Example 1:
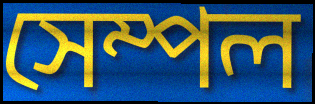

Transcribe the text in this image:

সেম্পল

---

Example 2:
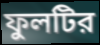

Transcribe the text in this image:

ফুলটির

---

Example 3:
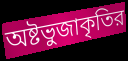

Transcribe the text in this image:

অষ্টভুজাকৃতির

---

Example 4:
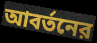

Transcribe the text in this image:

আবর্তনের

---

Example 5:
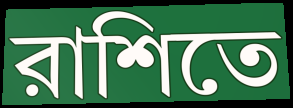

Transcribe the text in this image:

রাশিতে